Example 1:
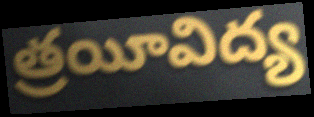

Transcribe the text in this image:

త్రయీవిద్య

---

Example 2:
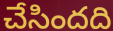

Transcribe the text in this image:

చేసిందది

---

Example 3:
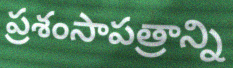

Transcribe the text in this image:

ప్రశంసాపత్రాన్ని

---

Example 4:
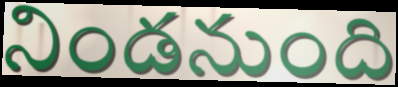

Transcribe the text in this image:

నిండనుంది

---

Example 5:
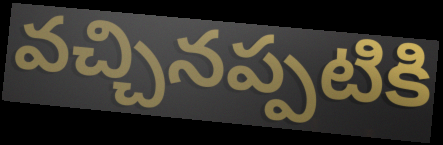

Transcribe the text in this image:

వచ్చినప్పటికి